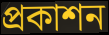
প্ৰকাশন